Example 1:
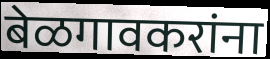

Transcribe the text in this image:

बेळगावकरांना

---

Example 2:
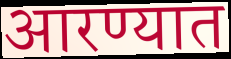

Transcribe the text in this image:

आरण्यात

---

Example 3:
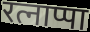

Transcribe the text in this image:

रत्नाप्पा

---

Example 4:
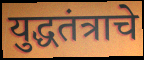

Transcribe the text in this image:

युद्धतंत्राचे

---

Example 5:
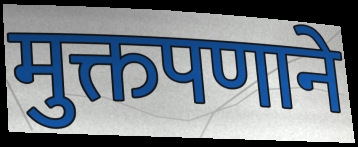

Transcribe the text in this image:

मुक्तपणाने